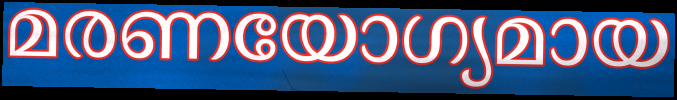
മരണയോഗ്യമായ